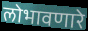
लोभावणारे